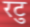
रटु